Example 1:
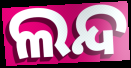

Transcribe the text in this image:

ଲନ୍ଦ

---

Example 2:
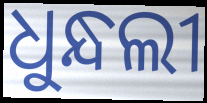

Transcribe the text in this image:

ଧୁନ୍ଧଲୀ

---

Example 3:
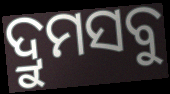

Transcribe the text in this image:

ଦ୍ରୁମସବୁ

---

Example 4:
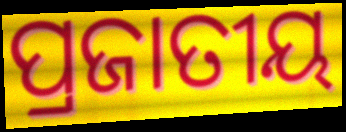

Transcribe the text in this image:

ପ୍ରଜାତୀୟ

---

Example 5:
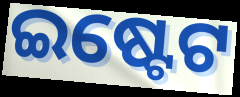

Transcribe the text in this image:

ଇଷ୍ଟେଟ